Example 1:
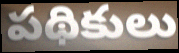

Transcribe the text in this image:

పథికులు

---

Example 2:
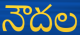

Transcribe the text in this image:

నౌదల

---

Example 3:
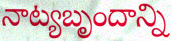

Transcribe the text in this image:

నాట్యబృందాన్ని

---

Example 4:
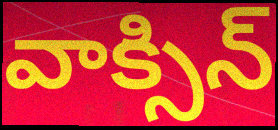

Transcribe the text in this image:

వాక్సిన్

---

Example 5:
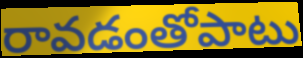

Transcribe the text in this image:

రావడంతోపాటు